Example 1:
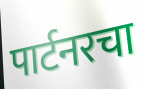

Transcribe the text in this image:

पार्टनरचा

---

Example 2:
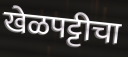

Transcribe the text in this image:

खेळपट्टीचा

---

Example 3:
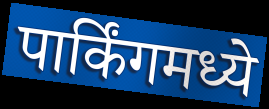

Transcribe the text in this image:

पार्किंगमध्ये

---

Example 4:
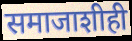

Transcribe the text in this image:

समाजाशीही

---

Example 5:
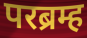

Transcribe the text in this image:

परब्रम्ह